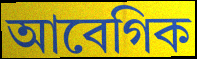
আবেগিক